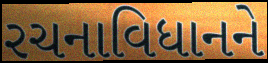
રચનાવિધાનને